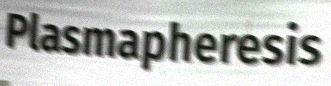
Plasmapheresis